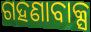
ଗହଣାବାକ୍ସ